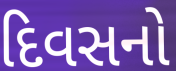
દિવસનો